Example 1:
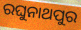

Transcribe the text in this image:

ରଘୁନାଥପୁର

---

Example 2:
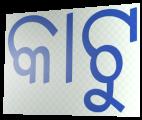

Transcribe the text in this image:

କାଟୁ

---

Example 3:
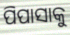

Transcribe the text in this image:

ପିପାସାକୁ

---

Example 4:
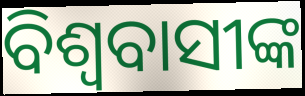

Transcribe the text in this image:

ବିଶ୍ଵବାସୀଙ୍କ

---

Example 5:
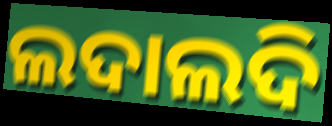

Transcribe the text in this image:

ଲଦାଲଦି